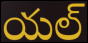
యల్